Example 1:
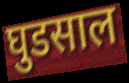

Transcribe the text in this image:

घुडसाल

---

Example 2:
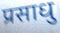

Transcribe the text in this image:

प्रसाधु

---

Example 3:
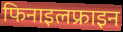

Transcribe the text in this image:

फिनाइलफ्राइन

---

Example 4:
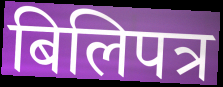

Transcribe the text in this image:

बिलिपत्र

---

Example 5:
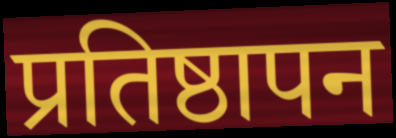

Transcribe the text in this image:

प्रतिष्ठापन